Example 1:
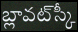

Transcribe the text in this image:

బ్లావట్‌స్కీ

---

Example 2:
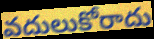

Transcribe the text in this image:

వదులుకోరాదు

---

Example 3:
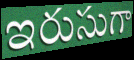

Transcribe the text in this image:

ఇరుసుగా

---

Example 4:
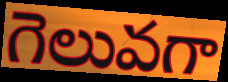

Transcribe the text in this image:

గెలువగా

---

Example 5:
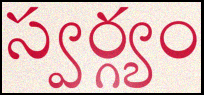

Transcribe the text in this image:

స్వర్గ్యం